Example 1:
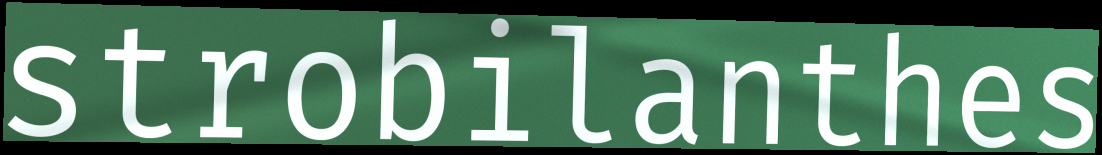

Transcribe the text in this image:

strobilanthes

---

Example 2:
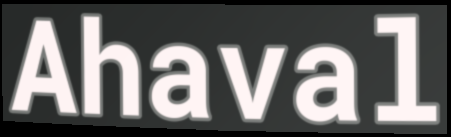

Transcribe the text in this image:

Ahaval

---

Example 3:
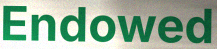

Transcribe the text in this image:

Endowed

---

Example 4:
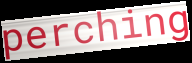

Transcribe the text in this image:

perching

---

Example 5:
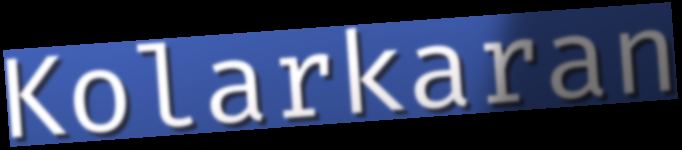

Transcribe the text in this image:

Kolarkaran